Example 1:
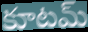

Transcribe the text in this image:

కూటమ్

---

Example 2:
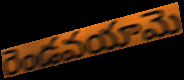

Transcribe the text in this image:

రెండవయామె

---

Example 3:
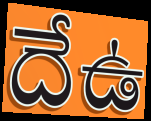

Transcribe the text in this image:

దేఉ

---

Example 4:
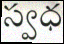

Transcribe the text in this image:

స్వధ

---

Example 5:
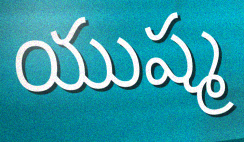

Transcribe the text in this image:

యుష్మ